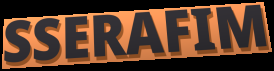
SSERAFIM